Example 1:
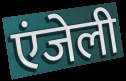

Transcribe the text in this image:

एंजेली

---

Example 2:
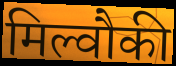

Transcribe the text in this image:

मिल्वौकी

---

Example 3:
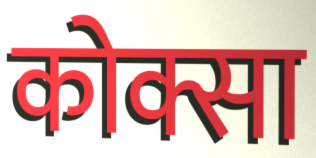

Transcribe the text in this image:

कोक्सा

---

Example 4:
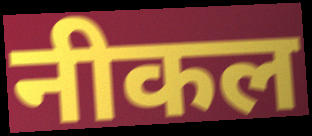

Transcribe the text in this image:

नीकल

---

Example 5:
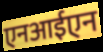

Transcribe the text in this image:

एनआईएन